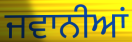
ਜਵਾਨੀਆਂ